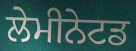
ਲੇਮੀਨੇਟਡ